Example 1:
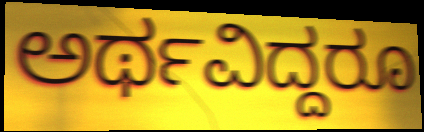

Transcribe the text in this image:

ಅರ್ಥವಿದ್ದರೂ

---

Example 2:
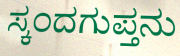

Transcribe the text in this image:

ಸ್ಕಂದಗುಪ್ತನು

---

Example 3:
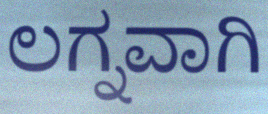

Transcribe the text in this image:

ಲಗ್ನವಾಗಿ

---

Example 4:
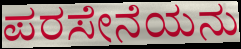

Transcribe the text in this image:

ಪರಸೇನೆಯನು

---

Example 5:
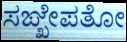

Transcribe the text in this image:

ಸಙ್ಖೇಪತೋ